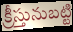
క్రీస్తునుబట్టి